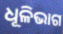
ଧୂଳିଭାଗ